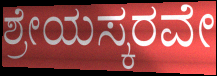
ಶ್ರೇಯಸ್ಕರವೇ